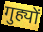
गुह्यों